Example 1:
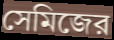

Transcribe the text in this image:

সেমিজের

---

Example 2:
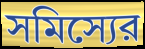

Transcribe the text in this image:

সমিস্যের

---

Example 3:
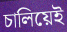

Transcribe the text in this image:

চালিয়েই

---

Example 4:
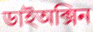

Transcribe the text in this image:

ডাইঅক্সিন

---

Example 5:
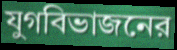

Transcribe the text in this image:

যুগবিভাজনের